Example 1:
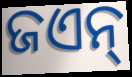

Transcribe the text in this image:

ଜଏନ୍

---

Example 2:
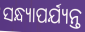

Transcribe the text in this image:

ସନ୍ଧ୍ୟାପର୍ଯ୍ୟନ୍ତ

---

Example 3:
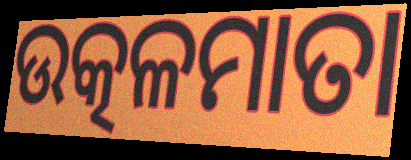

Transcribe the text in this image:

ଉତ୍କଳମାତା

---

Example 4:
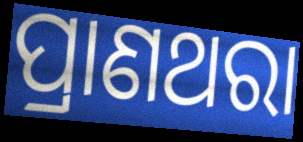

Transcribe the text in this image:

ପ୍ରାଣଥରା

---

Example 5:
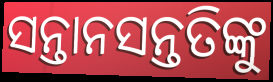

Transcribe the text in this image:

ସନ୍ତାନସନ୍ତତିଙ୍କୁ